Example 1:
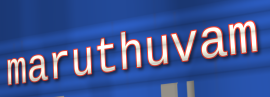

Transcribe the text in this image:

maruthuvam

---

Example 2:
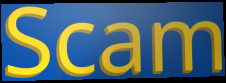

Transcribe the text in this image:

Scam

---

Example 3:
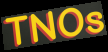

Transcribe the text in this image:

TNOs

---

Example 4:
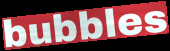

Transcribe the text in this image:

bubbles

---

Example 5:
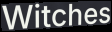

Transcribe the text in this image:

Witches